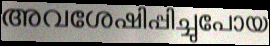
അവശേഷിപ്പിച്ചുപോയ